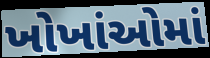
ખોખાંઓમાં